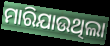
ମାରିଯାଉଥିଲା